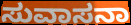
ಸುವಾಸನಾ